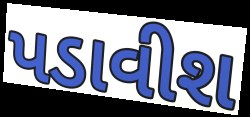
પડાવીશ